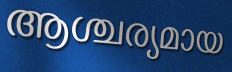
ആശ്ചര്യമായ